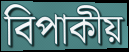
বিপাকীয়